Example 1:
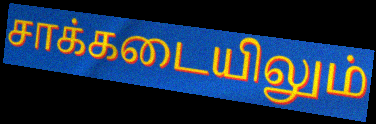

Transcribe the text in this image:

சாக்கடையிலும்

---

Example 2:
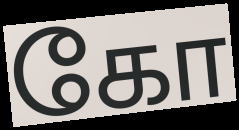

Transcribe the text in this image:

கோ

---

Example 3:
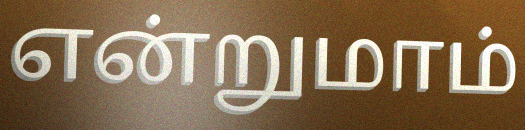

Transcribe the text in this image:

என்றுமாம்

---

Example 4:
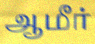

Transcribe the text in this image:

ஆமீர்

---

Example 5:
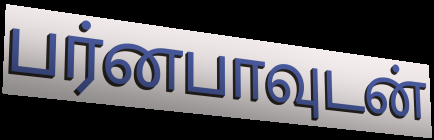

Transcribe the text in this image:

பர்னபாவுடன்